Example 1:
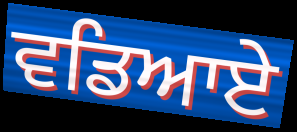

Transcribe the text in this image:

ਵਡਿਆਏ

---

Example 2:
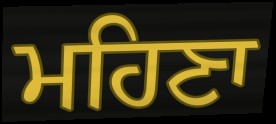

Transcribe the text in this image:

ਮਹਿਣਾ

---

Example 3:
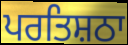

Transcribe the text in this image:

ਪਰਤਿਸ਼ਠਾ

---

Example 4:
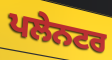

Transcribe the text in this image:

ਪਲੇਨਟਰ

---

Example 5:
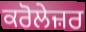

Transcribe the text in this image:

ਕਰੋਲੇਜ਼ਰ